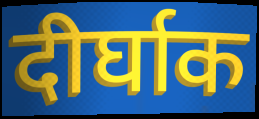
दीर्घाक